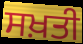
ਸਖ਼ਤੀ